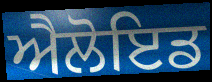
ਐਲੋਇਡ